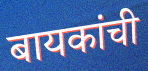
बायकांची